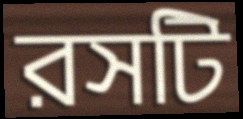
রসটি